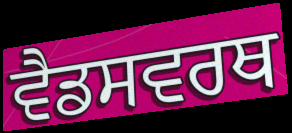
ਵੈਡਸਵਰਥ